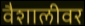
वैशालीवर